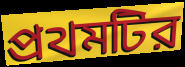
প্রথমটির